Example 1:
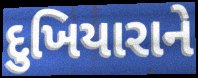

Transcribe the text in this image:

દુખિયારાને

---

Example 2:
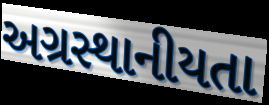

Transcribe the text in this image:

અગ્રસ્થાનીયતા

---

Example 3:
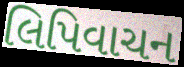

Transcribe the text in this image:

લિપિવાચન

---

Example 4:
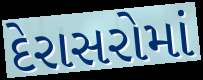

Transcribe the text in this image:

દેરાસરોમાં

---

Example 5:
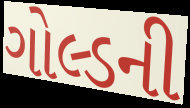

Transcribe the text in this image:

ગોલ્ડની